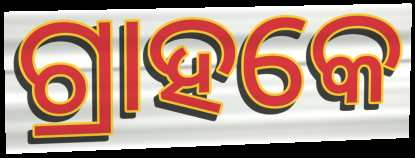
ଗ୍ରାହକେ